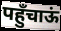
पहुँचाऊं